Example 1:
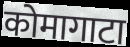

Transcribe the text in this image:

कोमागाटा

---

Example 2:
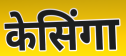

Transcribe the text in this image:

केसिंगा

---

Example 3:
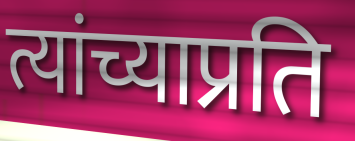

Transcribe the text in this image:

त्यांच्याप्रति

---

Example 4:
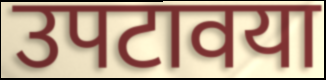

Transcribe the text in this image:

उपटावया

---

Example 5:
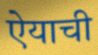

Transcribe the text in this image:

ऐयाची